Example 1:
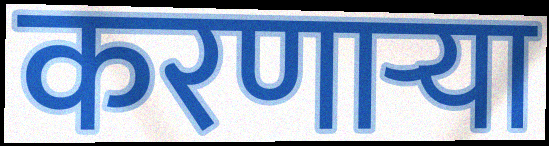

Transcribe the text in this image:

करणाऱ्या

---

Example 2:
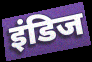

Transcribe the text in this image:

इंडिज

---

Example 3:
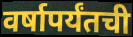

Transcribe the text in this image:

वर्षापर्यंतची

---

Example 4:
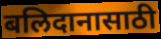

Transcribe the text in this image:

बलिदानासाठी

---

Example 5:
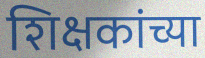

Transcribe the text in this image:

शिक्षकांच्‍या